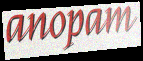
anopam